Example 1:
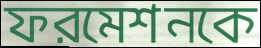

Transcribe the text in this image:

ফরমেশনকে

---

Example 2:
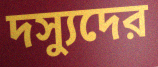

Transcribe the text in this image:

দস্যুদের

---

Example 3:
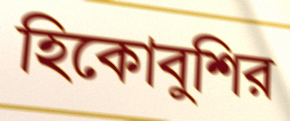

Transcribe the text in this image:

হিকোবুশির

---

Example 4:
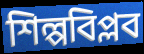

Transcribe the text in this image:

শিল্পবিপ্লব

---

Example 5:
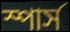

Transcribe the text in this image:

স্পার্স